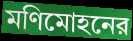
মণিমোহনের